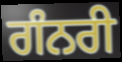
ਗੰਨਰੀ